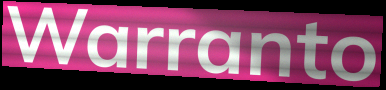
Warranto